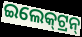
ଇଲେକ୍‍ଟ୍ରନ୍